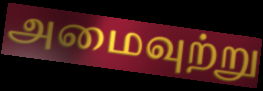
அமைவுற்று